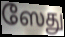
ஸேது